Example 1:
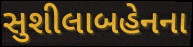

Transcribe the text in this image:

સુશીલાબહેનના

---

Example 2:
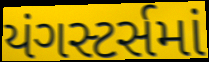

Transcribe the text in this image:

યંગસ્ટર્સમાં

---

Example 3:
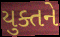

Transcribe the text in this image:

યુક્તને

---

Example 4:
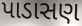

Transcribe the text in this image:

પાડાસણ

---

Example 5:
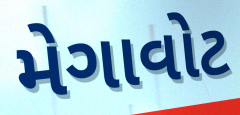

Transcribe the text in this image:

મેગાવોટ